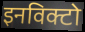
इनविक्टो